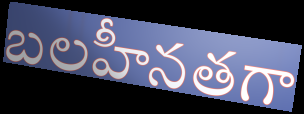
బలహీనతగా